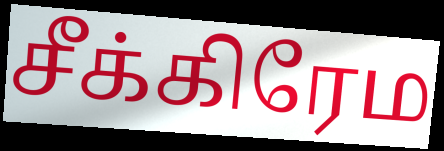
சீக்கிரேம